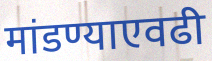
मांडण्याएवढी